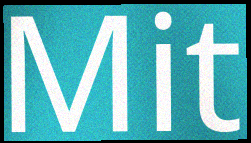
Mit